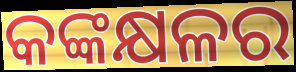
କଙ୍କକ୍ଷଳର